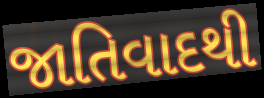
જાતિવાદથી